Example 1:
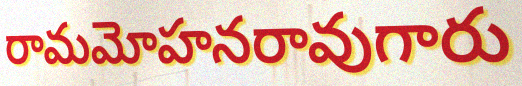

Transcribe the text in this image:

రామమోహనరావుగారు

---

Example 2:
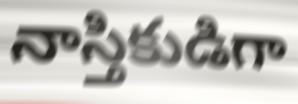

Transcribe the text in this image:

నాస్తికుడిగా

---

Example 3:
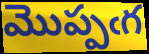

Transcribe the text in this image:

మొప్పఁగ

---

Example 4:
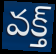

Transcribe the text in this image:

వక్త్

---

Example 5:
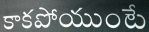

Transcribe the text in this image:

కాకపోయుంటే